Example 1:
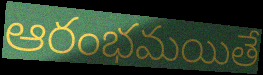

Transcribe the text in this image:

ఆరంభమయితే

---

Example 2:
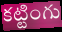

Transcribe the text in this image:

కట్టింగు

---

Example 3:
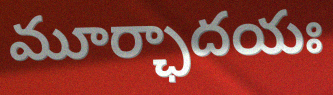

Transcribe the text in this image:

మూర్ఛాదయః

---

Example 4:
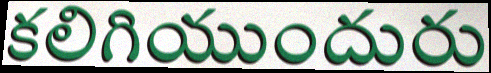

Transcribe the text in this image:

కలిగియుందురు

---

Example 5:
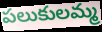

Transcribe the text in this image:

పలుకులమ్మ